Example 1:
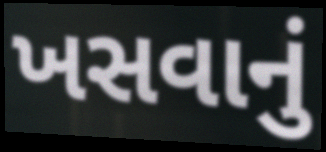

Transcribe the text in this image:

ખસવાનું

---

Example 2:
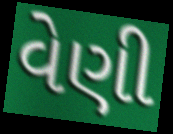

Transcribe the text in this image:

વેણી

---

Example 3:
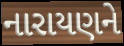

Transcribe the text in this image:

નારાયણને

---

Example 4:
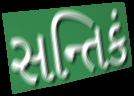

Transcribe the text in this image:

સન્તિકં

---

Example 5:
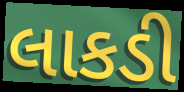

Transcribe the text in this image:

લાકડી